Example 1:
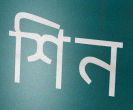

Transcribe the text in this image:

শিন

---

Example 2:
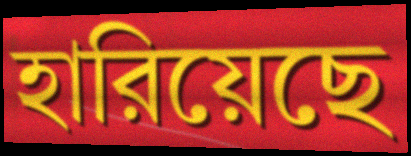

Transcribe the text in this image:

হারিয়েছে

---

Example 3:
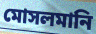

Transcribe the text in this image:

মোসলমানি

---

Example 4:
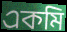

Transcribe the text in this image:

একমি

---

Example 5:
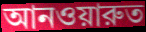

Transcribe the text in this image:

আনওয়ারুত